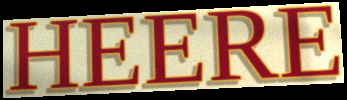
HEERE